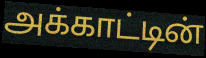
அக்காட்டின்